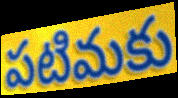
పటిమకు